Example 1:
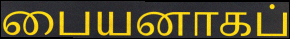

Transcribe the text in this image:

பையனாகப்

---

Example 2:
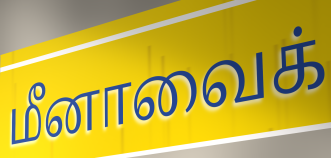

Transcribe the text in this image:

மீனாவைக்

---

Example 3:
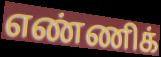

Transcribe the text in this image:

எண்ணிக்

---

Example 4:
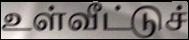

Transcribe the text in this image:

உள்வீட்டுச்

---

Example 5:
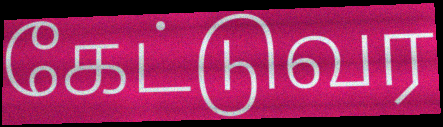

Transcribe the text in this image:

கேட்டுவர